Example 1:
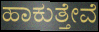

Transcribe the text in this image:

ಹಾಕುತ್ತೇವೆ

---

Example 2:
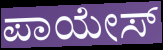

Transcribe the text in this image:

ಪಾಯೇಸ್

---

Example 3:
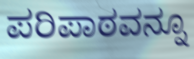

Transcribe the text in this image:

ಪರಿಪಾಠವನ್ನೂ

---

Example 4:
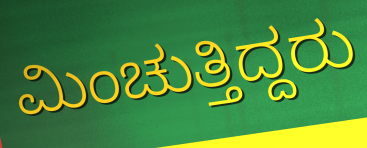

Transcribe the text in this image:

ಮಿಂಚುತ್ತಿದ್ದರು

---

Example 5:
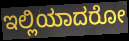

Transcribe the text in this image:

ಇಲ್ಲಿಯಾದರೋ